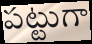
పట్టుగా